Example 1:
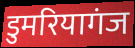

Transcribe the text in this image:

डुमरियागंज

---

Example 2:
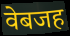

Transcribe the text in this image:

वेबजह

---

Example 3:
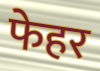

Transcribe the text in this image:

फेहर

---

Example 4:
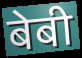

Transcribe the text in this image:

बेबी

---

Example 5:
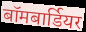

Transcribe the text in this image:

बॉमबार्डियर